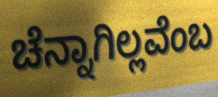
ಚೆನ್ನಾಗಿಲ್ಲವೆಂಬ